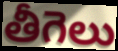
తీగెలు